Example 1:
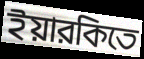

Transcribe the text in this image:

ইয়ারকিতে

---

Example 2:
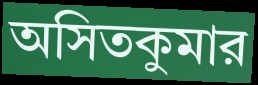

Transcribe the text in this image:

অসিতকুমার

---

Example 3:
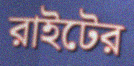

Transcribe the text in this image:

রাইটের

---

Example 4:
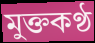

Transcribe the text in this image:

মুক্তকণ্ঠ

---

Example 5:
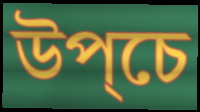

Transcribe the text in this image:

উপ্চে